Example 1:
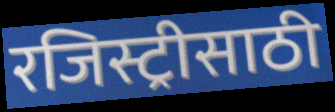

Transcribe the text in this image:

रजिस्ट्रीसाठी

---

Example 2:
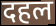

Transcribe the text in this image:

दहल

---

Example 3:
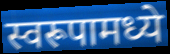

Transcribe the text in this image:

स्वरूपामध्ये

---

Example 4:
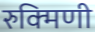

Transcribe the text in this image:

रुक्‍मिणी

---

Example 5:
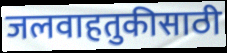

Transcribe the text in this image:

जलवाहतुकीसाठी